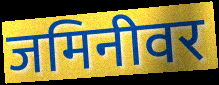
जमिनीवर